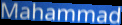
Mahammad